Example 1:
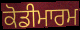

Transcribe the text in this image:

ਕੋਡੀਮਾਰਮ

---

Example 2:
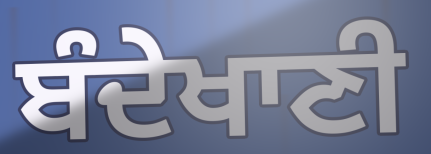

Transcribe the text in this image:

ਬੰਦੇਖਾਣੀ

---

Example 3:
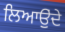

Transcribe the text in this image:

ਲਿਆਉੁਂਦੇ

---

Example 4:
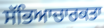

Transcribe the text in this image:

ਸੱਭਿਆਚਾਰਕਤਾ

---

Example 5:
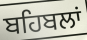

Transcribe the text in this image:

ਬਹਿਬਲਾਂ